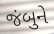
જંબુને